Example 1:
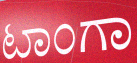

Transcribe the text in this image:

ಟಾಂಗಾ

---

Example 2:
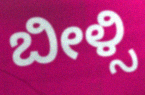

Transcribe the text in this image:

ಬೀಳ್ಸಿ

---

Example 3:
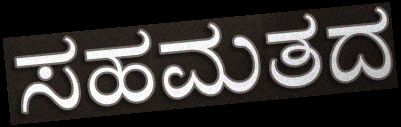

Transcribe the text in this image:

ಸಹಮತದ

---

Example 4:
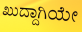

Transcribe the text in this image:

ಖುದ್ದಾಗಿಯೇ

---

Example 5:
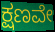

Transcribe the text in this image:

ಕ್ಷಣವೇ